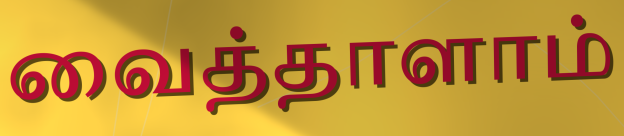
வைத்தாளாம்